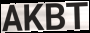
AKBT